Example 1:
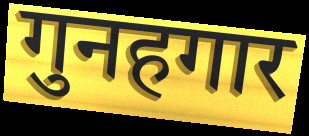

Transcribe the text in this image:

गुनहगार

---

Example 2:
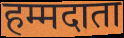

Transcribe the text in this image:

हम्मदाता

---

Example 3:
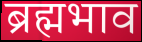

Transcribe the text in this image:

ब्रह्मभाव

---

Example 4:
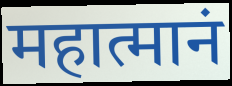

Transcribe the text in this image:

महात्मानं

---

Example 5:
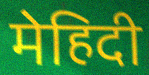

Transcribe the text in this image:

मेहिदी